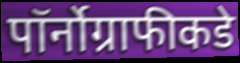
पॉर्नोग्राफीकडे